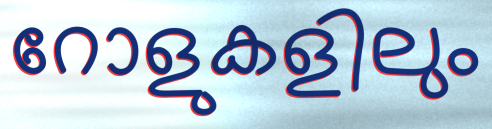
റോളുകളിലും